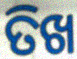
ତିଖ